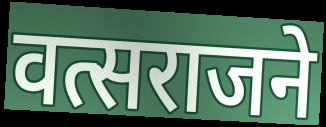
वत्सराजने